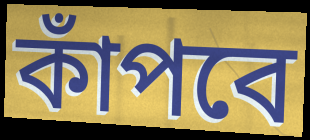
কাঁপবে